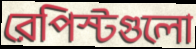
রেপিস্টগুলো